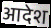
आदेश